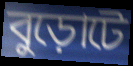
বুড়োটে